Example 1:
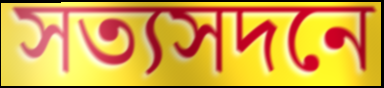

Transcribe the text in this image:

সত্যসদনে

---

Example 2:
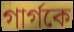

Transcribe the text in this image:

গার্গকে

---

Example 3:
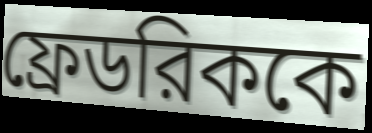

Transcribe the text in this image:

ফ্রেডরিককে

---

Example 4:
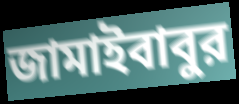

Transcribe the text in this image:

জামাইবাবুর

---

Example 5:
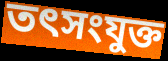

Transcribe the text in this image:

তৎসংযুক্ত